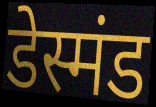
डेस्मंड